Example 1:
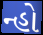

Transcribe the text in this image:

ન્હો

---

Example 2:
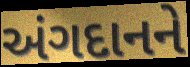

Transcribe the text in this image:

અંગદાનને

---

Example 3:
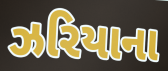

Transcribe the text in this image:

ઝરિયાના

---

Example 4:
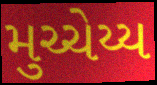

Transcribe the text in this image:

મુચ્ચેય્ય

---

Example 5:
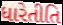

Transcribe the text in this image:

ધારેતીતિ